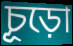
চূড়ো